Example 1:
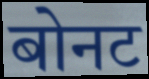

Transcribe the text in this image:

बोनट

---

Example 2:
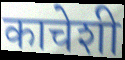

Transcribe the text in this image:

काचेशी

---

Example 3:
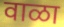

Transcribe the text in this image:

वाळा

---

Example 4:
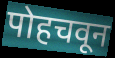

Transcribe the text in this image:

पोहचवून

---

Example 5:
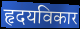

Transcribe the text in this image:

हृदयविकार